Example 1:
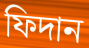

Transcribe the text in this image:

ফিদান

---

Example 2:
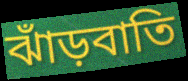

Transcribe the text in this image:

ঝাঁড়বাতি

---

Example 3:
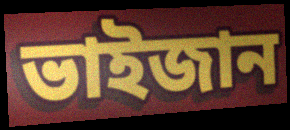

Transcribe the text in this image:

ভাইজান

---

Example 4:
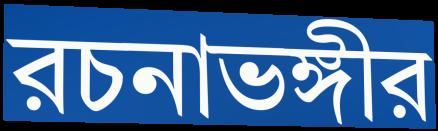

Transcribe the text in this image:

রচনাভঙ্গীর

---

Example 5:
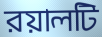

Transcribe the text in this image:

রয়ালটি